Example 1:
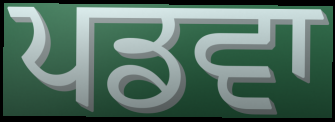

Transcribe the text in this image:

ਪਡਵਾ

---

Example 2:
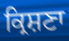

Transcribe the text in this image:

ਕ੍ਰਿਸ਼ਣਾ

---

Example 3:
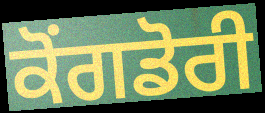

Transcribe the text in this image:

ਕੋਂਗਡੋਰੀ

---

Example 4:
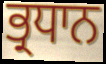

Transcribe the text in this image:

ਭ੍ਰਧਾਨ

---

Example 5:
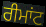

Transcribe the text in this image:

ਰੀਮਾਂਟ